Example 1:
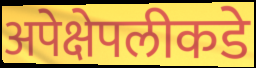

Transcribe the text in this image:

अपेक्षेपलीकडे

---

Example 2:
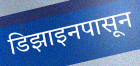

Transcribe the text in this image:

डिझाइनपासून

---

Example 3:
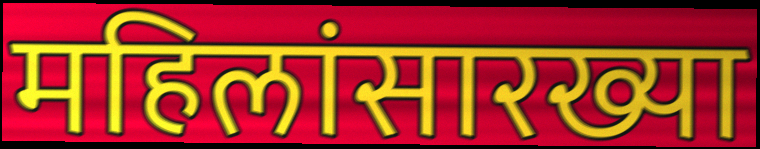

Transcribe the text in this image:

महिलांसारख्या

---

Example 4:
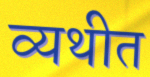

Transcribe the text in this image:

व्यथीत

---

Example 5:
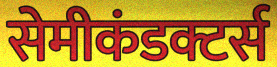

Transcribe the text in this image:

सेमीकंडक्टर्स